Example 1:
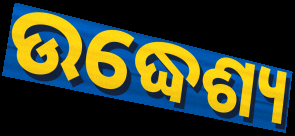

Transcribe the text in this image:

ଉଦ୍ଧେଶ୍ୟ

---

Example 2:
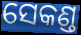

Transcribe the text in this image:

ସେକଣ୍ଡ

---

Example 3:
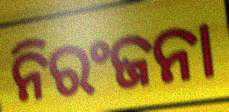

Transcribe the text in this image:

ନିରଂଜନା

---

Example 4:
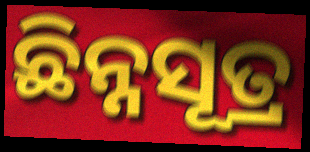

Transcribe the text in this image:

ଛିନ୍ନସୂତ୍ର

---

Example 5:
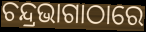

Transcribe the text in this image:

ଚନ୍ଦ୍ରଭାଗାଠାରେ